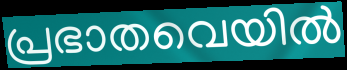
പ്രഭാതവെയിൽ